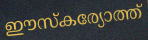
ഈസ്കര്യോത്ത്